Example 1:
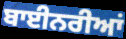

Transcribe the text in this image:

ਬਾਈਨਰੀਆਂ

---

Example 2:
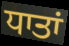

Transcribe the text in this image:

ਧਾਤਾਂ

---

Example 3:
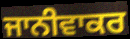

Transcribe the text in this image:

ਜਾਨੀਵਾਕਰ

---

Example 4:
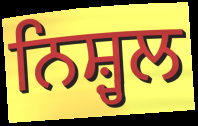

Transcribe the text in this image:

ਨਿਸ਼੍ਚਲ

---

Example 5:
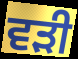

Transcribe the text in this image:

ਵੜੀ